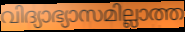
വിദ്യാഭ്യാസമില്ലാത്ത